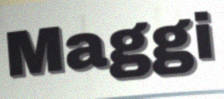
Maggi